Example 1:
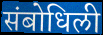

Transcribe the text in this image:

संबोधिली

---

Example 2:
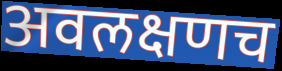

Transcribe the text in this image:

अवलक्षणच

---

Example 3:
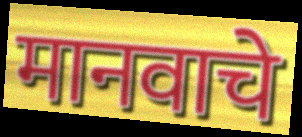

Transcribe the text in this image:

मानवाचे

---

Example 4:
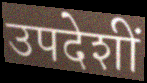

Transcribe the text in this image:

उपदेशीं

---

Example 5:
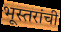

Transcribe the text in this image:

भूस्तरांची